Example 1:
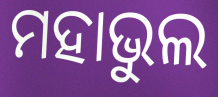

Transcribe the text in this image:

ମହାଭୁଲ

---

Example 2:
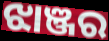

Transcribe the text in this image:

ଝାଞ୍ଜର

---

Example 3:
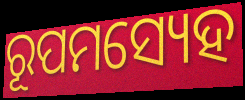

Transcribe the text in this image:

ରୂପମସ୍ୟେହ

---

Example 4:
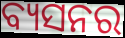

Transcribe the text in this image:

ବ୍ୟସନର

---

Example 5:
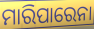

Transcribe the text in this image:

ମାରିପାରେନା